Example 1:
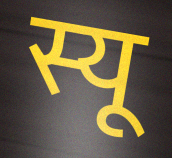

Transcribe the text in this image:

स्यू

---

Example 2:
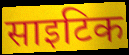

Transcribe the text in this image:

साइटिक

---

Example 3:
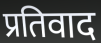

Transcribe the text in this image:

प्रतिवाद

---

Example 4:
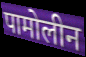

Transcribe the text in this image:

पामोलीन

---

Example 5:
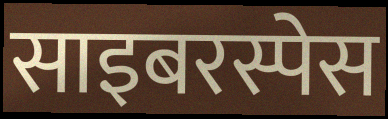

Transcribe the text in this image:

साइबरस्पेस